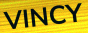
VINCY